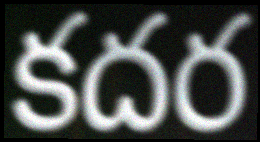
కదర